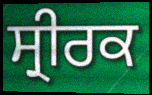
ਸ੍ਰੀਰਕ